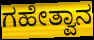
ಗಹೇತ್ವಾನ